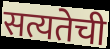
सत्यतेची